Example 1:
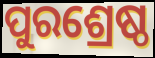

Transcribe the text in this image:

ପୁରଶ୍ରେଷ୍ଠ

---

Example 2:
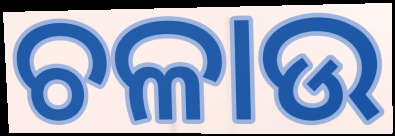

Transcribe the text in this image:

ଚଳାଉ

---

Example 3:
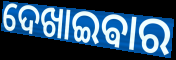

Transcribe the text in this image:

ଦେଖାଇଵାର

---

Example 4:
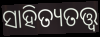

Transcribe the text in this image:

ସାହିତ୍ୟତତ୍ତ୍ୱ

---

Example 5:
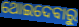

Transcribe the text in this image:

ଥୋଇଦେବାରୁ